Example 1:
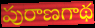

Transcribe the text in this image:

పురాణగాథ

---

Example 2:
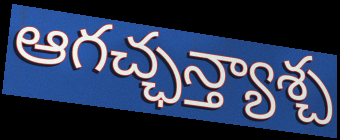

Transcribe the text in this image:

ఆగచ్ఛన్త్యాశ్చ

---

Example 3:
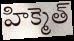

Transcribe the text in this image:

హిక్మెత్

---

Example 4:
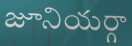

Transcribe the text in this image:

జూనియర్గా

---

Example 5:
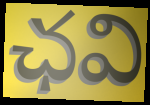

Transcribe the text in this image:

ఛవి